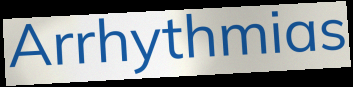
Arrhythmias